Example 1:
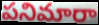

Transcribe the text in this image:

పనిమారా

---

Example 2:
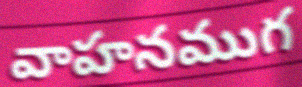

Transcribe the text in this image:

వాహనముగ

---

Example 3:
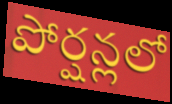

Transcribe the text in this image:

పోర్షన్లలో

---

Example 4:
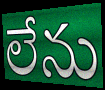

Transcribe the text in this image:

లేను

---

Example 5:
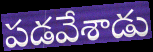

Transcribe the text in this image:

పడవేశాడు